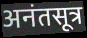
अनंतसूत्र